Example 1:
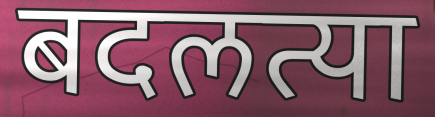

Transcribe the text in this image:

बदलत्या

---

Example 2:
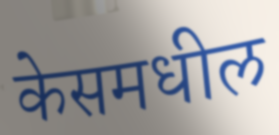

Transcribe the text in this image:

केसमधील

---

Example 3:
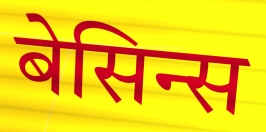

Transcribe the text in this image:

बेसिन्स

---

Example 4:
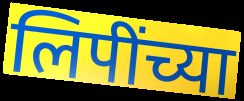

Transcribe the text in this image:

लिपींच्या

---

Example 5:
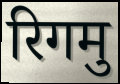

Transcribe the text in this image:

रिगमु